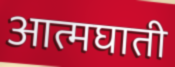
आत्मघाती